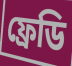
ফ্রেডি